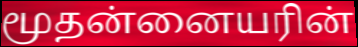
மூதன்னையரின்